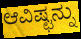
ಆವಿಷ್ಟನ್ನು